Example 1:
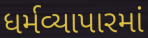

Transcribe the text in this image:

ધર્મવ્યાપારમાં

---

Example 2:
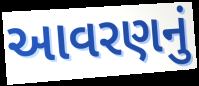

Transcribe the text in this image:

આવરણનું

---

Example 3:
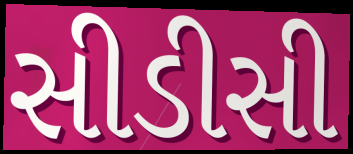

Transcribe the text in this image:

સીડીસી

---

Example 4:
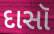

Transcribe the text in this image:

દાસૉ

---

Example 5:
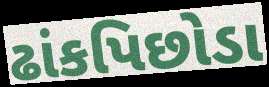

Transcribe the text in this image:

ઢાંકપિછોડા